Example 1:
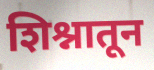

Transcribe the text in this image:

शिश्नातून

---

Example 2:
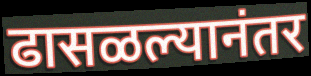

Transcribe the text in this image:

ढासळल्यानंतर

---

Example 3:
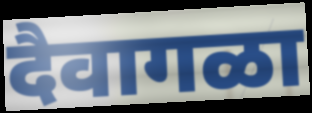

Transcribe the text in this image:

दैवागळा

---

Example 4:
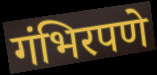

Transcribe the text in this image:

गंभिरपणे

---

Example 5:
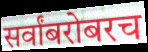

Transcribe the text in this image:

सर्वांबरोबरच